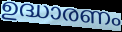
ഉദ്ധാരണം